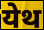
येथ